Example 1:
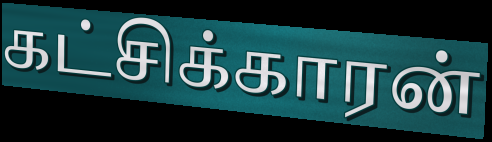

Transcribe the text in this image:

கட்சிக்காரன்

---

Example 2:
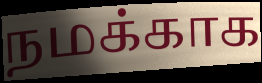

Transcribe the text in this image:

நமக்காக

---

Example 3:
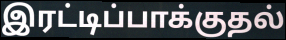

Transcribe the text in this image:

இரட்டிப்பாக்குதல்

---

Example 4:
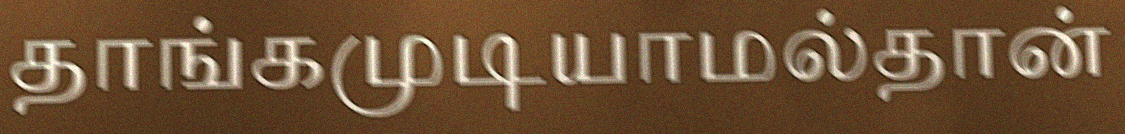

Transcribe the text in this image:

தாங்கமுடியாமல்தான்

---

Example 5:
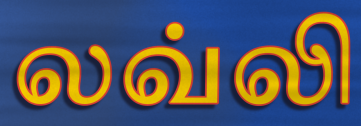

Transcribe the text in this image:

லவ்லி